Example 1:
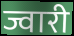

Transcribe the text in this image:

ज्वारी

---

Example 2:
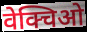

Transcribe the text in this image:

वेक्चिओ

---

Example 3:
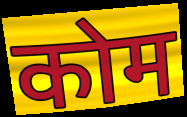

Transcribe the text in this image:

कोम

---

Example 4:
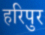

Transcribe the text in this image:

हरिपुर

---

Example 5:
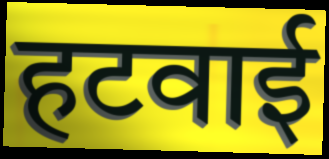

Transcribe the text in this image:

हटवाई